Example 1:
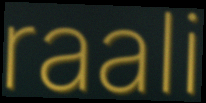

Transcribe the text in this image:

raali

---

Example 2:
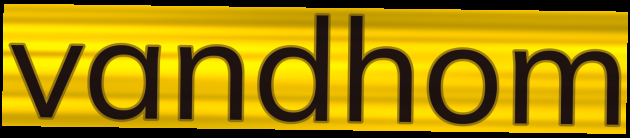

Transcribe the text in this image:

vandhom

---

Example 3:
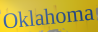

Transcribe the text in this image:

Oklahoma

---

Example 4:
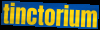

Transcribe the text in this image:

tinctorium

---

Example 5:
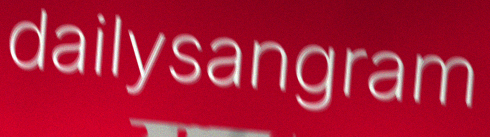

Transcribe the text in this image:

dailysangram